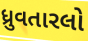
ધ્રુવતારલો